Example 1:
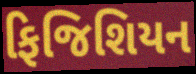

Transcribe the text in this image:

ફિજિશિયન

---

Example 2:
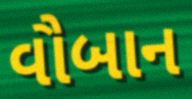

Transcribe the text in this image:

વૌબાન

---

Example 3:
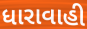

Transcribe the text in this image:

ધારાવાહી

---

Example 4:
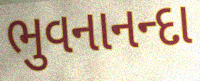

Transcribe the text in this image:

ભુવનાનન્દા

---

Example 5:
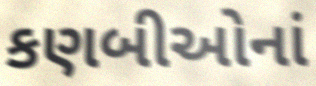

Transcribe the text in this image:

કણબીઓનાં